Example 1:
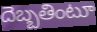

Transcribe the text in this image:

దెబ్బతింటూ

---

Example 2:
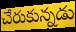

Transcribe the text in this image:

చేరుకున్నడు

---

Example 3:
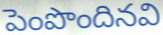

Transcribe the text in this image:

పెంపొందినవి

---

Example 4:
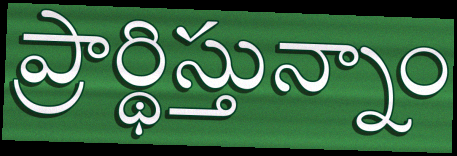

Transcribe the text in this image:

ప్రార్థిస్తున్నాం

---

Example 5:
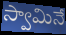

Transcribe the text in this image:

స్వామినే